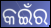
କଇଁର